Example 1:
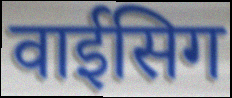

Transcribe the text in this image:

वाईसिग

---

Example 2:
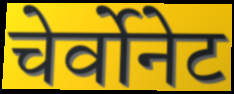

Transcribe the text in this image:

चेर्वोनेट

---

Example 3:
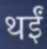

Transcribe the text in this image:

थईं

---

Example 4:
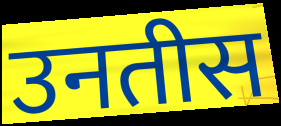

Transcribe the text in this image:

उनतीस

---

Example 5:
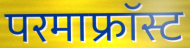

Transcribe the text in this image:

परमाफ्रॉस्ट